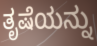
ತೃಷೆಯನ್ನು